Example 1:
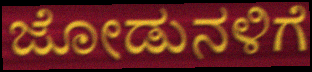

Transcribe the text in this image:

ಜೋಡುನಳಿಗೆ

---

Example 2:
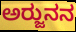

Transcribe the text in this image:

ಅರ್‍ಜುನನ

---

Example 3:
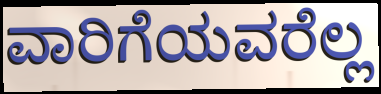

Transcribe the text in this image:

ವಾರಿಗೆಯವರೆಲ್ಲ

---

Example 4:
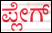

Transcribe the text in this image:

ಪ್ಲೇಗ್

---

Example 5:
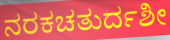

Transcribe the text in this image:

ನರಕಚತುರ್ದಶೀ